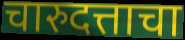
चारुदत्ताचा